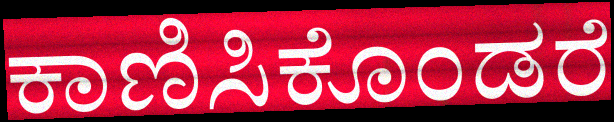
ಕಾಣಿಸಿಕೊಂಡರೆ